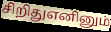
சிறிதுஎனினும்